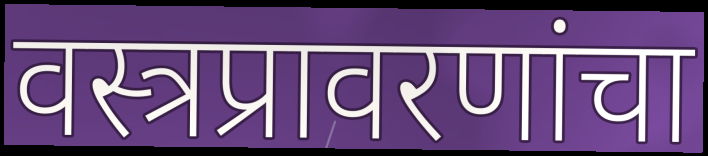
वस्त्रप्रावरणांचा